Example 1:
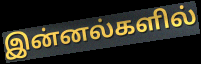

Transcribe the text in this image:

இன்னல்களில்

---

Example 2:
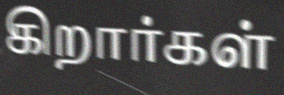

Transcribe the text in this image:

கிறார்கள்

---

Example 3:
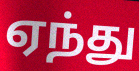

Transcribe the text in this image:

ஏந்து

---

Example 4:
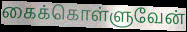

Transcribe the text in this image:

கைக்கொள்ளுவேன்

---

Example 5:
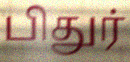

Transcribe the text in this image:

பிதுர்